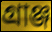
গ্রাঞ্জ